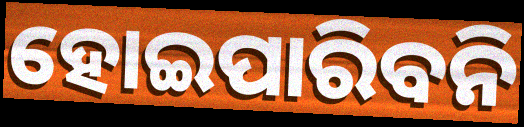
ହୋଇପାରିବନି